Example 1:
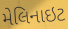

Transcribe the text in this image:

મેલિનાઇટ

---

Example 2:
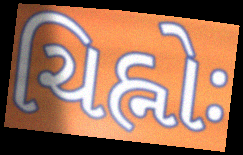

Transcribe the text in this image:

ચિહ્નોઃ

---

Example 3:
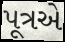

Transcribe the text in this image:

પૂત્રએ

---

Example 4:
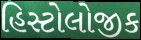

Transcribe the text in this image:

હિસ્ટોલોજીક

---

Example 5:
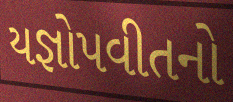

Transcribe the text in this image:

યજ્ઞોપવીતનો